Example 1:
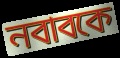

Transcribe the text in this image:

নবাবকে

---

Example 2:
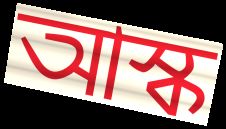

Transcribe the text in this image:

আস্ক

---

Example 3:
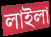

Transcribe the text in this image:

লাইলা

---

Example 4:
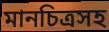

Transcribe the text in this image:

মানচিত্রসহ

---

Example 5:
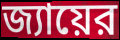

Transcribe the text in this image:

জ্যায়ের